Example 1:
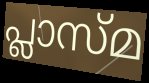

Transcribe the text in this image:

പ്ലാസ്മ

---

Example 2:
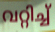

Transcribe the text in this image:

വറ്റിച്ച്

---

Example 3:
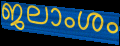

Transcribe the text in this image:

ജലാംശം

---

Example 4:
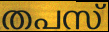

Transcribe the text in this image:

തപസ്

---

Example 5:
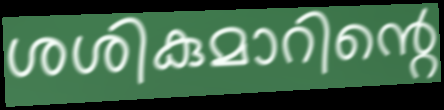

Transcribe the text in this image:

ശശികുമാറിന്റെ